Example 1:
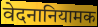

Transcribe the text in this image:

वेदनानियामक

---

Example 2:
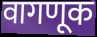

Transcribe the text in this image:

वागणूक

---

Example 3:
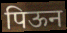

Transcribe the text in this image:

पिऊन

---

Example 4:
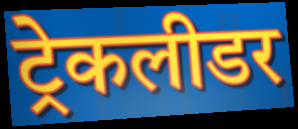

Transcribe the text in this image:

ट्रेकलीडर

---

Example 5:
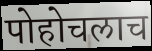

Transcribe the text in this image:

पोहोचलाच